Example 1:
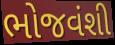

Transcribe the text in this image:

ભોજવંશી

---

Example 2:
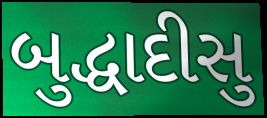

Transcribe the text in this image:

બુદ્ધાદીસુ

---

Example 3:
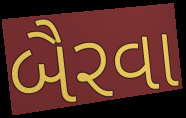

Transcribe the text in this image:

બૈરવા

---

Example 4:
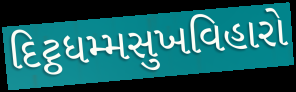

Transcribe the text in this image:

દિટ્ઠધમ્મસુખવિહારો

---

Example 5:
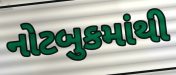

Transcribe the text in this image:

નોટબુકમાંથી